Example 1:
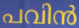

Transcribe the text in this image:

പവിൻ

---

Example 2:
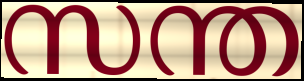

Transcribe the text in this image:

സന്ത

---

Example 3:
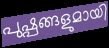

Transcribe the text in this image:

പുഷ്പങ്ങളുമായി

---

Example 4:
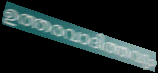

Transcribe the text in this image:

ഉത്തരവാദിത്തവും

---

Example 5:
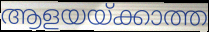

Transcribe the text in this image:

ആളയയ്ക്കാത്ത